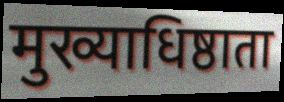
मुख्याधिष्ठाता